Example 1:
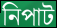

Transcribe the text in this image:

নিপাট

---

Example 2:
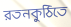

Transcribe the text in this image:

রতনকুঠিতে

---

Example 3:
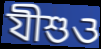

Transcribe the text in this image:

যীশুও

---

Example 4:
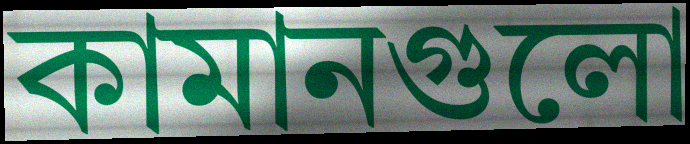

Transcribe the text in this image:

কামানগুলো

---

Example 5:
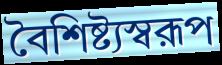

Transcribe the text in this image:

বৈশিষ্ট্যস্বরূপ